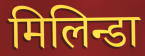
मिलिन्डा